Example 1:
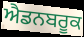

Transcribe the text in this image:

ਐਡਨਬਰੂਕ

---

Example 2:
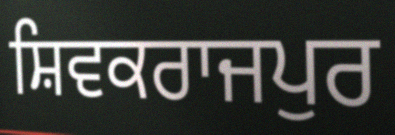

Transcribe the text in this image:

ਸ਼ਿਵਕਰਾਜਪੁਰ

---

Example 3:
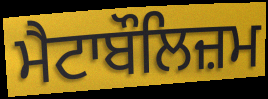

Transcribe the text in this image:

ਮੈਟਾਬੌਲਿਜ਼ਮ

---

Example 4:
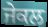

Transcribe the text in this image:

ਜੇਕਲ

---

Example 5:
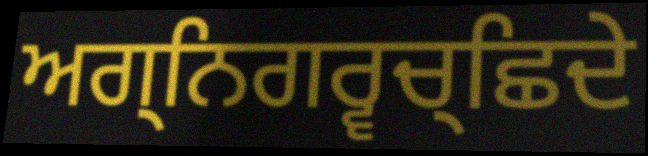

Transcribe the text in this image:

ਅਗ੍ਨਿਗਰ੍ਵਚ੍ਛਿਦੇ